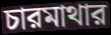
চারমাথার